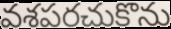
వశపరచుకొను